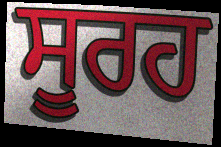
ਸੂਰਹ